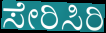
ಸೇರಿಸಿರಿ